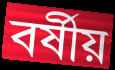
বৰ্ষীয়